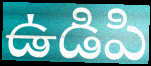
ఉడిపి